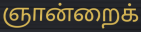
ஞான்றைக்